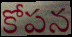
కోపన